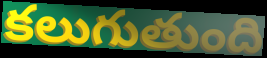
కలుగుతుంది